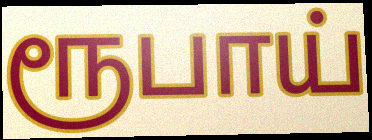
ரூபாய்